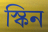
স্কিন